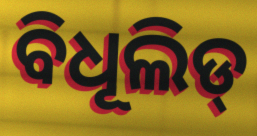
ବିଧୂଲିଡ୍